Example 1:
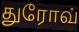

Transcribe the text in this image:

துரோவ்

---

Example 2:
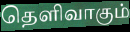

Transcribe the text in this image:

தெளிவாகும்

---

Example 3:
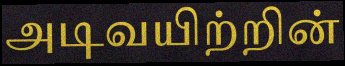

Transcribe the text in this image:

அடிவயிற்றின்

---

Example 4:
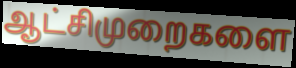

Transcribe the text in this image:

ஆட்சிமுறைகளை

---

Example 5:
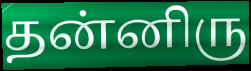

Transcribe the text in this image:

தன்னிரு